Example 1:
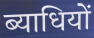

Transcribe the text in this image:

ब्याधियों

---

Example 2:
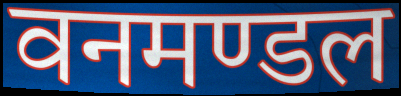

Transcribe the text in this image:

वनमण्डल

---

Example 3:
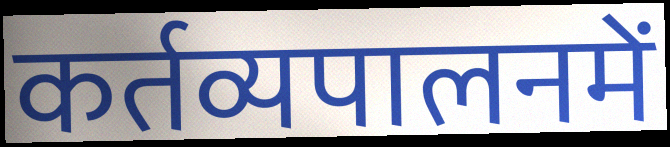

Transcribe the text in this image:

कर्तव्यपालनमें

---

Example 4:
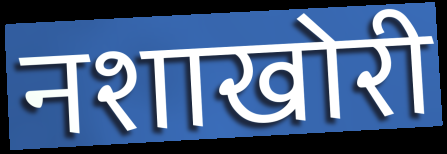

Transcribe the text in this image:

नशाखोरी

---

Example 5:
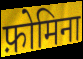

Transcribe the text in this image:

फ़ोमिना